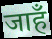
जाहँ